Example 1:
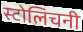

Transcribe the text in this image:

स्टोलिचनी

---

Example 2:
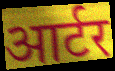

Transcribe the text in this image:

आर्टर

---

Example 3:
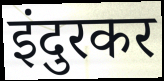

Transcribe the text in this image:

इंदुरकर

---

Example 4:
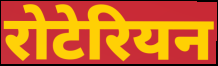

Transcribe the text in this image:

रोटेरियन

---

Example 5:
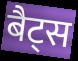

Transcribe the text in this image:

बैट्स